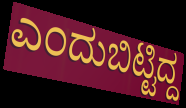
ಎಂದುಬಿಟ್ಟಿದ್ದ